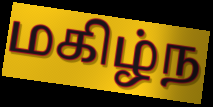
மகிழ்ந